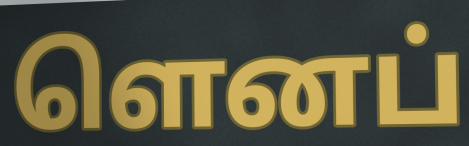
ளெனப்